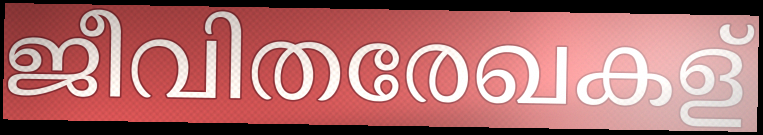
ജീവിതരേഖകള്